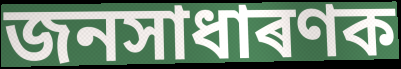
জনসাধাৰণক